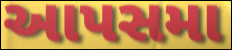
આપસમા